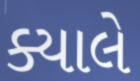
ક્યાલે